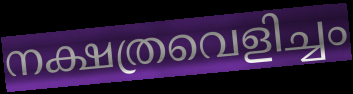
നക്ഷത്രവെളിച്ചം